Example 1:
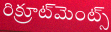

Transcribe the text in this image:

రిక్రూట్‌మెంట్స్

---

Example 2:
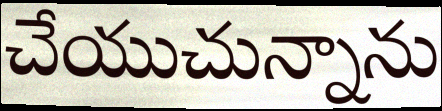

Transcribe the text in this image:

చేయుచున్నాను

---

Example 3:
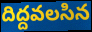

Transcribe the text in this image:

దిద్దవలసిన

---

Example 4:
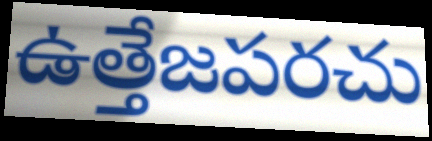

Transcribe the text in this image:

ఉత్తేజపరచు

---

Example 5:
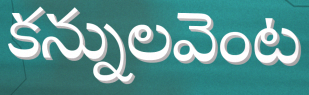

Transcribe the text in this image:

కన్నులవెంట